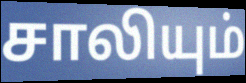
சாலியும்